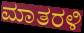
ಮಾತರಳಿ